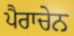
ਪੈਰਾਚੇਨ